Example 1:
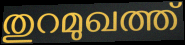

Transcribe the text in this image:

തുറമുഖത്ത്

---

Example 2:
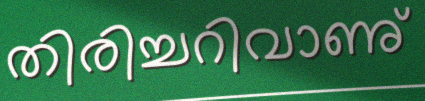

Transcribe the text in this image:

തിരിച്ചറിവാണു്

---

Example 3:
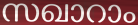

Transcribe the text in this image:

സഖാറാം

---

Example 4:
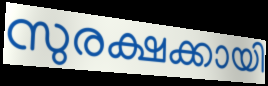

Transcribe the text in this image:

സുരക്ഷക്കായി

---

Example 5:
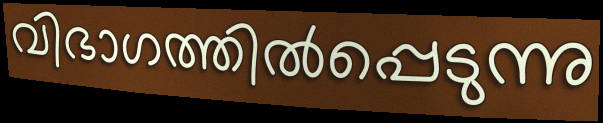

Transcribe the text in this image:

വിഭാഗത്തിൽപ്പെടുന്നു